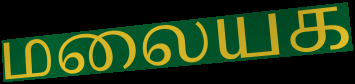
மலையக